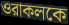
ওরাকলকে